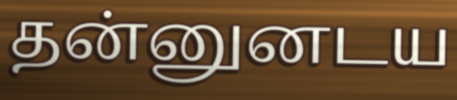
தன்னுனடய